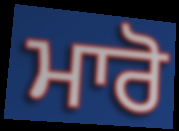
ਮਾਰੋ